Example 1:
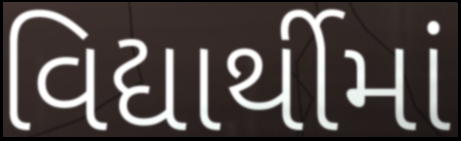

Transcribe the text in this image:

વિદ્યાર્થીમાં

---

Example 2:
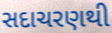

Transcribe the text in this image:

સદાચરણથી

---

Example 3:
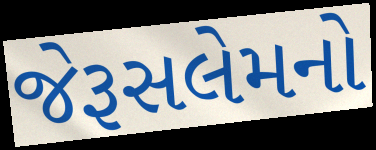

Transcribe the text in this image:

જેરૂસલેમનો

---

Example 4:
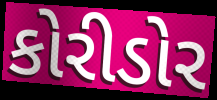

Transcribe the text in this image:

કોરીડોર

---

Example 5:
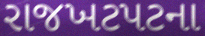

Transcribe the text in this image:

રાજખટપટના